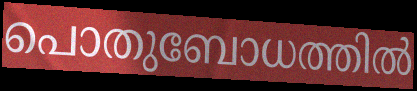
പൊതുബോധത്തിൽ